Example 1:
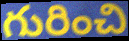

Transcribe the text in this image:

గురించి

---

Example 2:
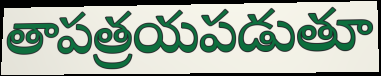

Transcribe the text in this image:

తాపత్రయపడుతూ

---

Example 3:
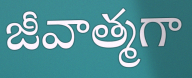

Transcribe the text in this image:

జీవాత్మగా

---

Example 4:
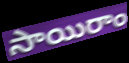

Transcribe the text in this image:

సాయిరాం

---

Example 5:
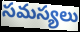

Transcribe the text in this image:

సమస్యలు